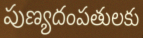
పుణ్యదంపతులకు